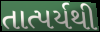
તાત્પર્યથી